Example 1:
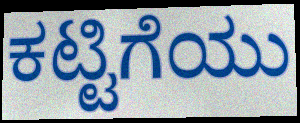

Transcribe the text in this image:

ಕಟ್ಟಿಗೆಯು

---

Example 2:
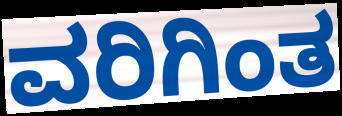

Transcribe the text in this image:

ವರಿಗಿಂತ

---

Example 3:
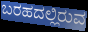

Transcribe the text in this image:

ಬರಹದಲ್ಲಿರುವ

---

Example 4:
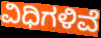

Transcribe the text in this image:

ವಿಧಿಗಳಿವೆ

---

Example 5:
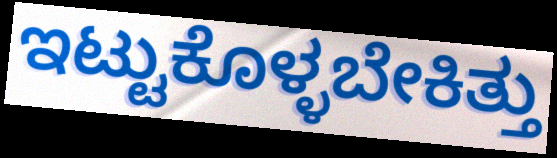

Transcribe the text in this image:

ಇಟ್ಟುಕೊಳ್ಳಬೇಕಿತ್ತು